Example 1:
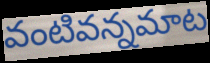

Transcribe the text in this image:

వంటివన్నమాట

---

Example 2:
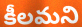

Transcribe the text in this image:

కీలమని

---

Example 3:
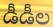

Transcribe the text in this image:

డీడీల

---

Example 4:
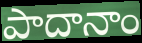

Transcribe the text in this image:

పాదానాం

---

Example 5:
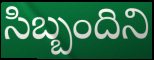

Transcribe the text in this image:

సిబ్బందిని